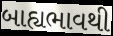
બાહ્યભાવથી